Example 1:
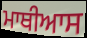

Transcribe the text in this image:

ਮਾਥੀਆਸ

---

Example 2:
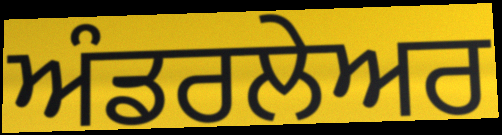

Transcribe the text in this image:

ਅੰਡਰਲੇਅਰ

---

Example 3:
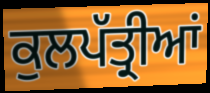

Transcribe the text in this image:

ਕੁਲਪੱਤ੍ਰੀਆਂ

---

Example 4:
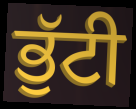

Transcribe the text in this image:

ਭੁੱਟੀ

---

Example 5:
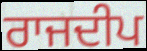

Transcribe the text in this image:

ਰਾਜਦੀਪ